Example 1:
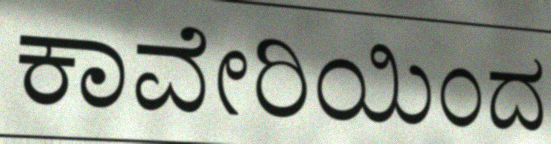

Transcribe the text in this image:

ಕಾವೇರಿಯಿಂದ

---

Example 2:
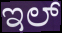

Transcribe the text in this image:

ಇಲ್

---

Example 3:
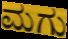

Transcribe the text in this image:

ಮಗು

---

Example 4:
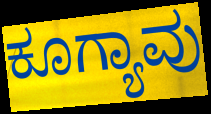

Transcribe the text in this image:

ಕೂಗ್ಯಾವು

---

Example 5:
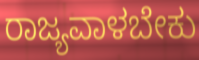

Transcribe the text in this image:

ರಾಜ್ಯವಾಳಬೇಕು